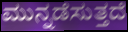
ಮುನ್ನಡೆಸುತ್ತದೆ